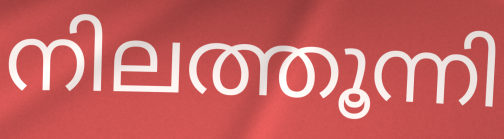
നിലത്തൂന്നി